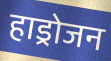
हाड्रोजन